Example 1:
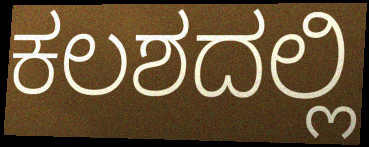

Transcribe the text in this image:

ಕಲಶದಲ್ಲಿ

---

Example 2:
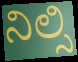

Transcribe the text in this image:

ನಿಲ್ಸಿ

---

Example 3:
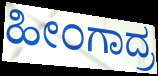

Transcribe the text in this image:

ಹೀಂಗಾದ್ರ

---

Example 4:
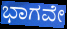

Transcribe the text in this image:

ಭಾಗವೇ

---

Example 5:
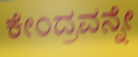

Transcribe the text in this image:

ಕೇಂದ್ರವನ್ನೇ